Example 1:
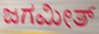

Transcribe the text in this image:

ಜಗಮೀತ್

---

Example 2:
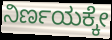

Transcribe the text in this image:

ನಿರ್ಣಯಕ್ಕೇ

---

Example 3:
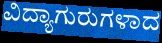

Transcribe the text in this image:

ವಿದ್ಯಾಗುರುಗಳಾದ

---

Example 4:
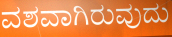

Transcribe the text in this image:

ವಶವಾಗಿರುವುದು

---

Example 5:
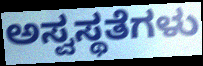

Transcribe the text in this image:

ಅಸ್ವಸ್ಥತೆಗಳು